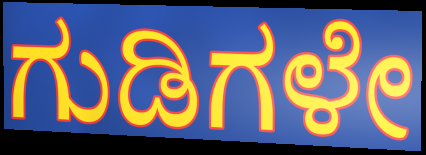
ಗುಡಿಗಳೇ